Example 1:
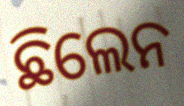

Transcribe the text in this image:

ଛିଲେନ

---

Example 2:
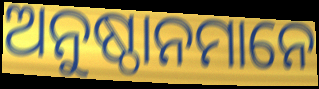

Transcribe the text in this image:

ଅନୁଷ୍ଠାନମାନେ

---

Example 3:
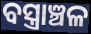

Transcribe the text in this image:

ବସ୍ତ୍ରାଞ୍ଚଳ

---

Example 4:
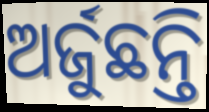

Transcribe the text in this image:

ଅର୍ଜୁଛନ୍ତି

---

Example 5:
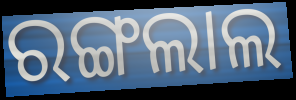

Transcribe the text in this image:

ରଙ୍ଗଲାଲ